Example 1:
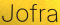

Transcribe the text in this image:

Jofra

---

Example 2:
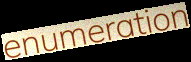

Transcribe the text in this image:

enumeration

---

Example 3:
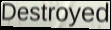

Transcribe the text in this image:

Destroyed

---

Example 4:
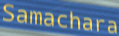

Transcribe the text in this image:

Samachara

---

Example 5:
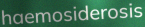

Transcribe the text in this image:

haemosiderosis